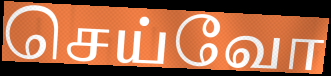
செய்வோ